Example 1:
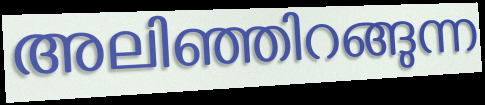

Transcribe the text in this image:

അലിഞ്ഞിറങ്ങുന്ന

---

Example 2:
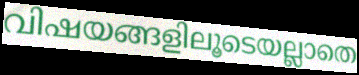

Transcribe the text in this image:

വിഷയങ്ങളിലൂടെയല്ലാതെ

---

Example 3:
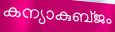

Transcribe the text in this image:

കന്യാകുബ്ജം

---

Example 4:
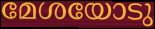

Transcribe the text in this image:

മേശയോടു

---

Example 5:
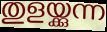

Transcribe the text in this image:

തുളയ്ക്കുന്ന